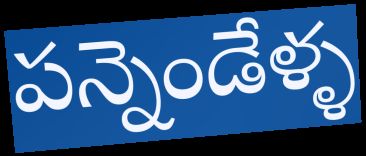
పన్నెండేళ్ళ